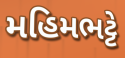
મહિમભટ્ટે